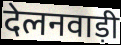
देलनवाड़ी